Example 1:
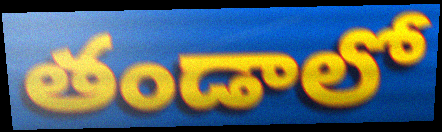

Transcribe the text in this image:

తండాలో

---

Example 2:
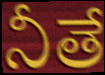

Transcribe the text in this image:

నీతే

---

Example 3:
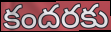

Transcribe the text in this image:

కందరకు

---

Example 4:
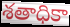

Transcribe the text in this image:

శతాధికా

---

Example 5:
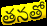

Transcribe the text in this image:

తనతో